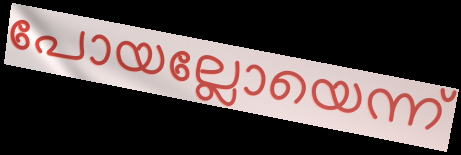
പോയല്ലോയെന്ന്